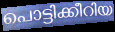
പൊട്ടിക്കീറിയ